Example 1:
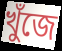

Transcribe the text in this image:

খুঁজে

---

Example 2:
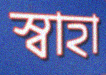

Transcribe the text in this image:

স্বাহা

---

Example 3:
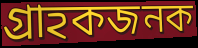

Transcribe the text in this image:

গ্ৰাহকজনক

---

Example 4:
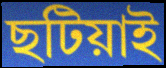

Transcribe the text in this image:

ছটিয়াই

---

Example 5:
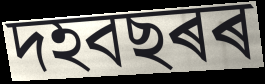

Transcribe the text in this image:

দহবছৰৰ